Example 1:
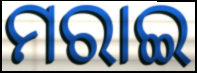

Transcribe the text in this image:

ମରାଇ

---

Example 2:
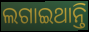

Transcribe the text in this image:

ଲଗାଇଥାନ୍ତି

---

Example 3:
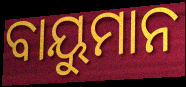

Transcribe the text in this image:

ବାୟୁମାନ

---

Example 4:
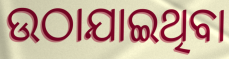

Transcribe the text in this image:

ଉଠାଯାଇଥିବା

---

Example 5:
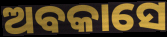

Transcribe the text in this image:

ଅବକାସେ